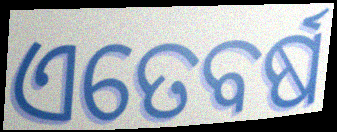
ଏତେବର୍ଷ